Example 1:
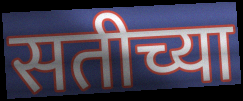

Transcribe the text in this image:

सतीच्या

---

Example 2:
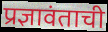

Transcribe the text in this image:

प्रज्ञावंताची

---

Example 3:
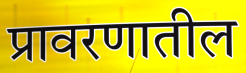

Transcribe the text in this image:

प्रावरणातील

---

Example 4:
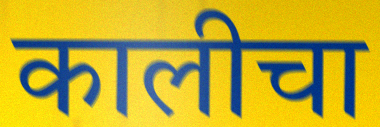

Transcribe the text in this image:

कालीचा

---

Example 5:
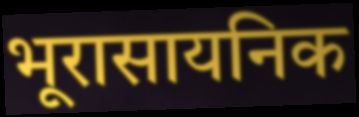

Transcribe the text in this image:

भूरासायनिक